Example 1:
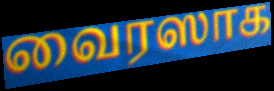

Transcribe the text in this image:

வைரஸாக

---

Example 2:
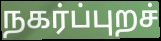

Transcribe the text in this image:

நகர்ப்புறச்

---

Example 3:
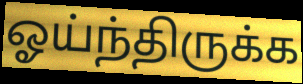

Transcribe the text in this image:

ஓய்ந்திருக்க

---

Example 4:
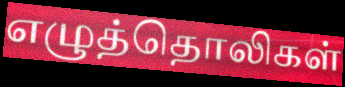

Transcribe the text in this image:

எழுத்தொலிகள்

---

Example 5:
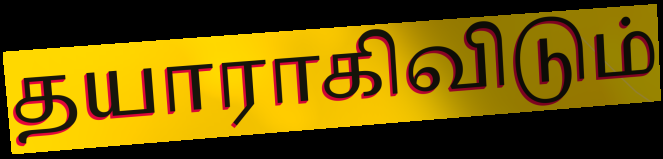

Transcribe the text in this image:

தயாராகிவிடும்